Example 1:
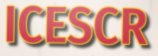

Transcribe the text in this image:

ICESCR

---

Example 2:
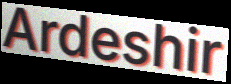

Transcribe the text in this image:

Ardeshir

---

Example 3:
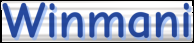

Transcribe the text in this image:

Winmani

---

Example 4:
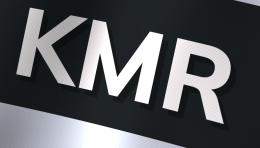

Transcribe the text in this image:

KMR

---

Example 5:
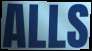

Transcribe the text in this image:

ALLS